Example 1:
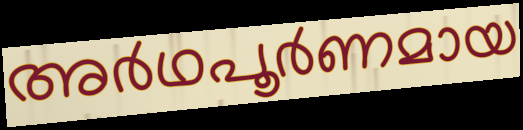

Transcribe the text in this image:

അർഥപൂർണമായ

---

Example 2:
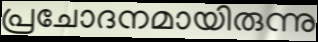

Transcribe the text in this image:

പ്രചോദനമായിരുന്നു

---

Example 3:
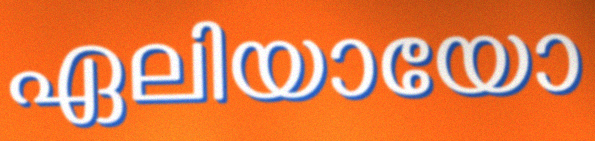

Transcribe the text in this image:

ഏലിയായോ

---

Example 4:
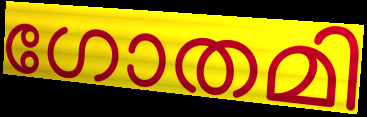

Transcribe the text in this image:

ഗോതമി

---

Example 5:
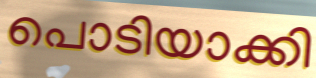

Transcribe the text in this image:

പൊടിയാക്കി